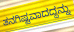
ತನಗಿಷ್ಟವಾದದ್ದನ್ನು